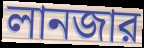
লানজার